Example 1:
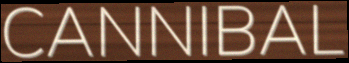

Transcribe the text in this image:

CANNIBAL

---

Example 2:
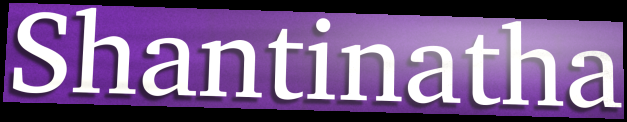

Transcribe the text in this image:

Shantinatha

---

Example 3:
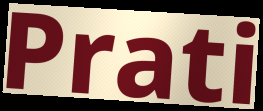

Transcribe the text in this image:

Prati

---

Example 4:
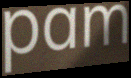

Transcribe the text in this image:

pam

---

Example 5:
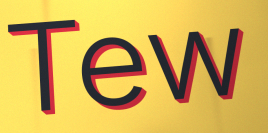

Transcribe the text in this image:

Tew